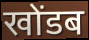
खोंडब